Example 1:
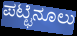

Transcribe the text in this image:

ಪಟ್ಟೆನೂಲು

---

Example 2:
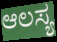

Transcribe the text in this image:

ಆಲಸ್ಯ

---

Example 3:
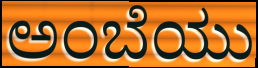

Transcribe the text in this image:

ಅಂಬೆಯು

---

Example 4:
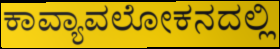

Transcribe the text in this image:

ಕಾವ್ಯಾವಲೋಕನದಲ್ಲಿ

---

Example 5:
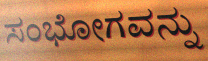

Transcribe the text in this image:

ಸಂಭೋಗವನ್ನು